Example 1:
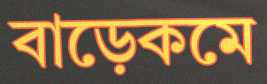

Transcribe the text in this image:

বাড়েকমে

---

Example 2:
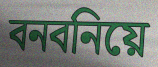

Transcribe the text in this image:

বনবনিয়ে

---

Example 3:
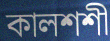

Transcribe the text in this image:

কালশশী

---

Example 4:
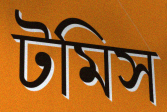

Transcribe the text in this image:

টমিস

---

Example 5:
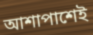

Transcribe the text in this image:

আশাপাশেই